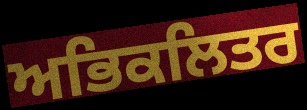
ਅਭਿਕਲਿਤਰ